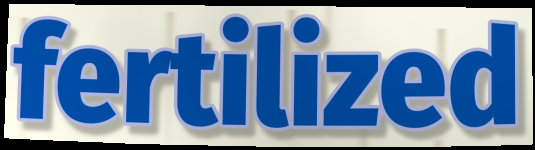
fertilized